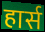
हार्स